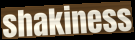
shakiness